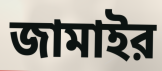
জামাইর